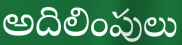
అదిలింపులు